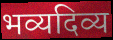
भव्यदिव्य